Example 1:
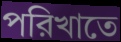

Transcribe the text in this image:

পরিখাতে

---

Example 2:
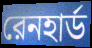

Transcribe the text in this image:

রেনহার্ড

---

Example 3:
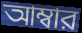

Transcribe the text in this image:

আম্বার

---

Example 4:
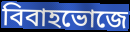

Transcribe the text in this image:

বিবাহভোজে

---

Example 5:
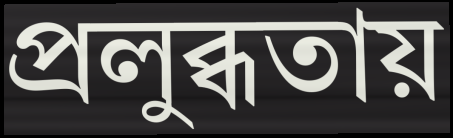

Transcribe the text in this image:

প্রলুব্ধতায়